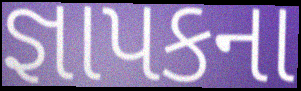
જ્ઞાપકના